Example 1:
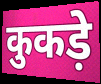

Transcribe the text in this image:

कुकड़े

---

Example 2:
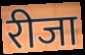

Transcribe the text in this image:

रीजा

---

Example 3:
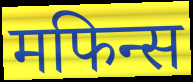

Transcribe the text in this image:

मफिन्स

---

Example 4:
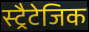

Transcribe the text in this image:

स्ट्रैटेजिक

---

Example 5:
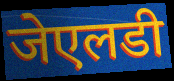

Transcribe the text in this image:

जेएलडी